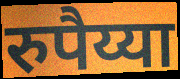
रुपैय्या